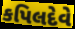
કપિલદેવે